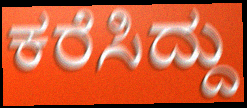
ಕರೆಸಿದ್ದು